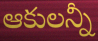
ఆకులన్నీ